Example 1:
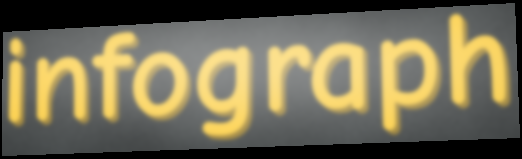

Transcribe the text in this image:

infograph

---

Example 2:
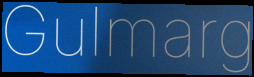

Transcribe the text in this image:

Gulmarg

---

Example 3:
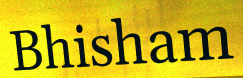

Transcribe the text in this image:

Bhisham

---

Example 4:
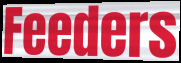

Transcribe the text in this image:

Feeders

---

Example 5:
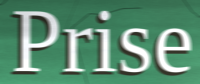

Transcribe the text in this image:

Prise